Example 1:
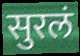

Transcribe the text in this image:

सुरलं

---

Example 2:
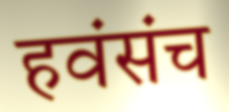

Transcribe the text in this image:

हवंसंच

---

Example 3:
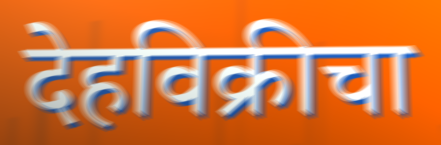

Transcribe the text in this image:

देहविक्रीचा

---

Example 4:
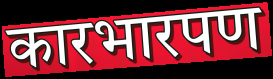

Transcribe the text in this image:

कारभारपण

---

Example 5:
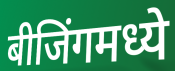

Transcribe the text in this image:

बीजिंगमध्ये